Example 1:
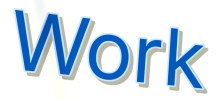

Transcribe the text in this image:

Work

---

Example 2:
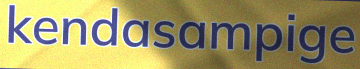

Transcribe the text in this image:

kendasampige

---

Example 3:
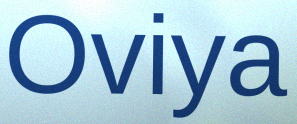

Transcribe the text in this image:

Oviya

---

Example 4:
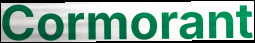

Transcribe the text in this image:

Cormorant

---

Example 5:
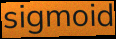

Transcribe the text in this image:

sigmoid